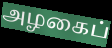
அழகைப்